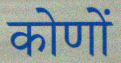
कोणों